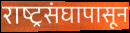
राष्ट्रसंघापासून